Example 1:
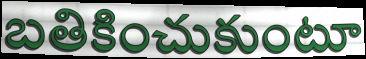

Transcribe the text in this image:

బతికించుకుంటూ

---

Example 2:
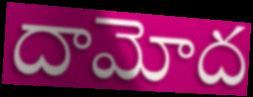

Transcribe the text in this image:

దామోద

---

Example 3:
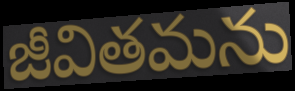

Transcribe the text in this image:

జీవితమను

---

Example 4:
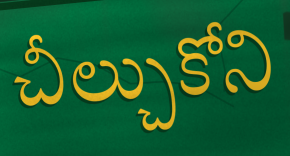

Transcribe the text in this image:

చీల్చుకోని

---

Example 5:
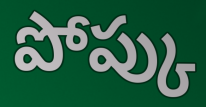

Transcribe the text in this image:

పోప్కు